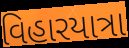
વિહારયાત્રા